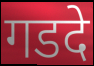
गडदे